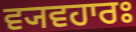
ਵ੍ਯਵਹਾਰਃ